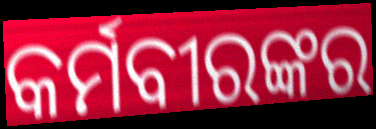
କର୍ମବୀରଙ୍କର